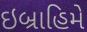
ઇબ્રાહિમે